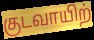
குடவாயிற்